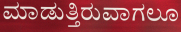
ಮಾಡುತ್ತಿರುವಾಗಲೂ